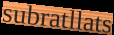
subratllats